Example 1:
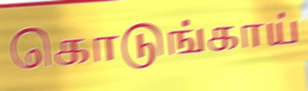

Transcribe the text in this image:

கொடுங்காய்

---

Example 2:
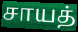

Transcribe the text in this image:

சாயத்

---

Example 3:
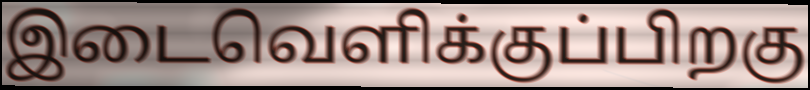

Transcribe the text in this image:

இடைவெளிக்குப்பிறகு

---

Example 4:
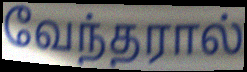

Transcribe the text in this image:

வேந்தரால்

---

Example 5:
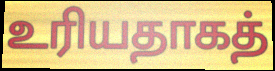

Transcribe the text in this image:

உரியதாகத்